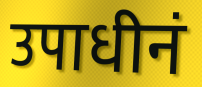
उपाधीनं